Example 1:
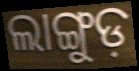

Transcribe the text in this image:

ଲାଙ୍ଗୁଡ଼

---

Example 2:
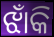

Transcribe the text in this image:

ଝାଁକି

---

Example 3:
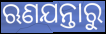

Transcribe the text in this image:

ଋଣଯନ୍ତାରୁ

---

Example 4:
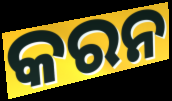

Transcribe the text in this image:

କରନ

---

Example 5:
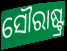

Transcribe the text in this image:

ସୌରାଷ୍ଟ୍ର